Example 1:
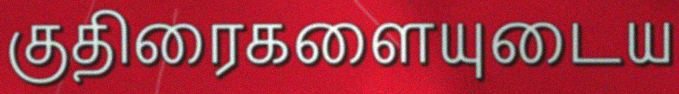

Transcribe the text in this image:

குதிரைகளையுடைய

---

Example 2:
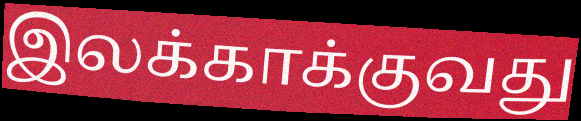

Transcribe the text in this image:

இலக்காக்குவது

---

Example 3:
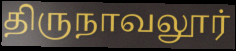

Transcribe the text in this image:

திருநாவலூர்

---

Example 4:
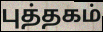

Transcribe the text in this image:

புத்தகம்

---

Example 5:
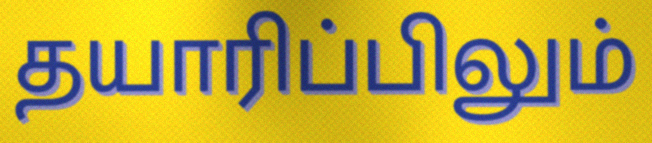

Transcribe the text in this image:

தயாரிப்பிலும்